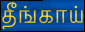
தீங்காய்